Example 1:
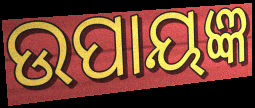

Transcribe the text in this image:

ଉପାୟଜ୍ଞ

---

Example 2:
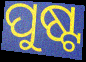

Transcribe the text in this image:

ପୁଷ୍ଟ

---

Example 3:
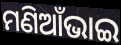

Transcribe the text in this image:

ମଣିଆଁଭାଇ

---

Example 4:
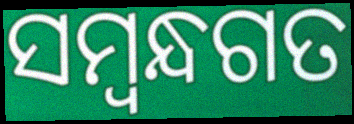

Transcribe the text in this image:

ସମ୍ବନ୍ଧଗତ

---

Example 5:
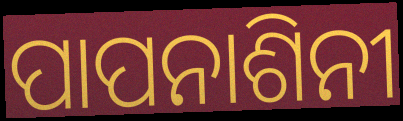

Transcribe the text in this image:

ପାପନାଶିନୀ